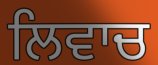
ਲਿਵਾਚ